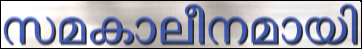
സമകാലീനമായി